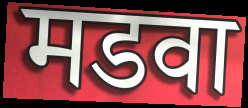
मडवा